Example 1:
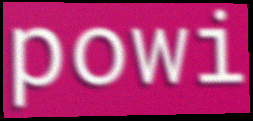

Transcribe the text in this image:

powi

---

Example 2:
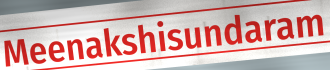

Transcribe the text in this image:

Meenakshisundaram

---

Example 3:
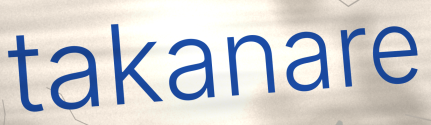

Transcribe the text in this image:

takanare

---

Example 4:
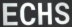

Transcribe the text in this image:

ECHS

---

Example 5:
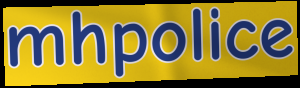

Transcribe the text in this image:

mhpolice